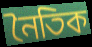
নৈতিক